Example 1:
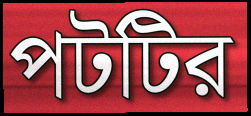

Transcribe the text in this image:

পটটির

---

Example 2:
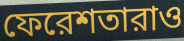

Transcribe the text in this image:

ফেরেশতারাও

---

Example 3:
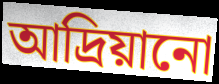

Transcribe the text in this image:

আদ্রিয়ানো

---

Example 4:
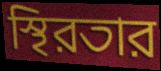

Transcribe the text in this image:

স্থিরতার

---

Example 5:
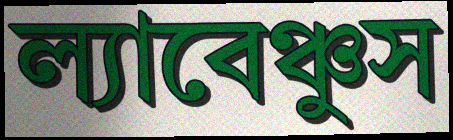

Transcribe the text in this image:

ল্যাবেঞ্চুস